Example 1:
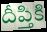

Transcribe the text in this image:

దీప్తికి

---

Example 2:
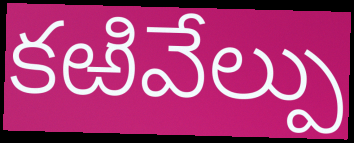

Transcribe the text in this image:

కఱివేల్పు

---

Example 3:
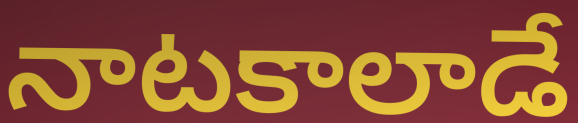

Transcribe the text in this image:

నాటకాలాడే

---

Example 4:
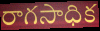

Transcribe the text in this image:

రాగసాధిక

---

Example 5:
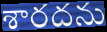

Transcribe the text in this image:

శారదను